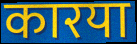
कारया